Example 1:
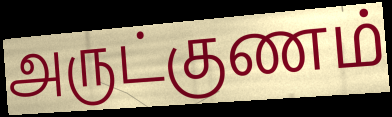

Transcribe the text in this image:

அருட்குணம்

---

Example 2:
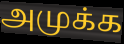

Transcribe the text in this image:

அமுக்க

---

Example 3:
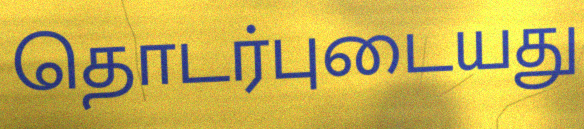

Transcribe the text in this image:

தொடர்புடையது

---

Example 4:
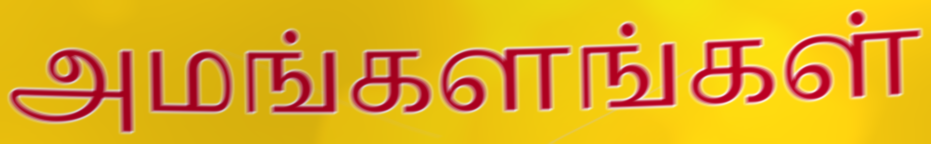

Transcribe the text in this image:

அமங்களங்கள்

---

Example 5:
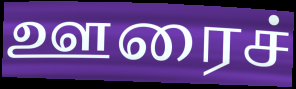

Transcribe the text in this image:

ஊரைச்